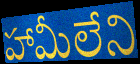
హామీలేని